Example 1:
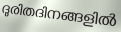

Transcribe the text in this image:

ദുരിതദിനങ്ങളിൽ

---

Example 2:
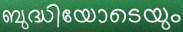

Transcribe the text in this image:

ബുദ്ധിയോടെയും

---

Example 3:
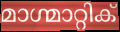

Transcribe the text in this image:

മാഗ്മാറ്റിക്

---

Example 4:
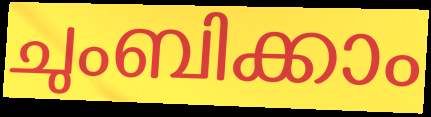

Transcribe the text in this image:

ചുംബിക്കാം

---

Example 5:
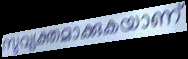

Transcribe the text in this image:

സുവ്യക്തമാക്കുകയാണ്